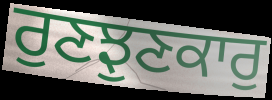
ਰੁਣਝੁਣਕਾਰੁ